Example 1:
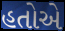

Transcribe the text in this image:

હતોએ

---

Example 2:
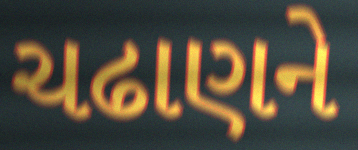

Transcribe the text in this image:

ચઢાણને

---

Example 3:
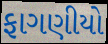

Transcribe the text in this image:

ફાગણીયો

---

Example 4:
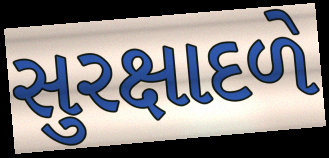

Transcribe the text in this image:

સુરક્ષાદળે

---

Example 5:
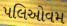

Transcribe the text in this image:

પલિઓવમ